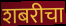
शबरीचा